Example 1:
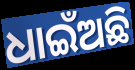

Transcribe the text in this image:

ଧାଇଁଅଛି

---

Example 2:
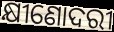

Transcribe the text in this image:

କ୍ଷୀଣୋଦରୀ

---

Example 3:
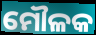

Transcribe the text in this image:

ମୌଳକ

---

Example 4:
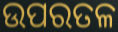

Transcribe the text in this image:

ଉପରତଳ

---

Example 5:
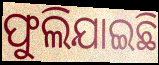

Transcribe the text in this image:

ଫୁଲିଯାଇଛି